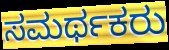
ಸಮರ್ಥಕರು